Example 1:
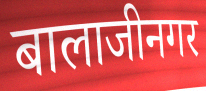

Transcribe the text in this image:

बालाजीनगर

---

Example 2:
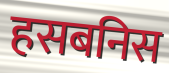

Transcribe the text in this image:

हसबनिस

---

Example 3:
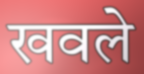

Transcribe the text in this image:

खवले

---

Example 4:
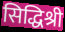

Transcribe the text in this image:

सिद्धिश्री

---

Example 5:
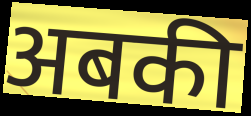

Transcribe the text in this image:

अबकी